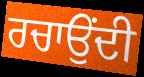
ਰਚਾਉਂਦੀ